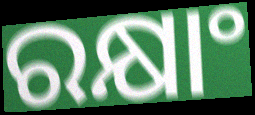
ରକ୍ଷାଂ